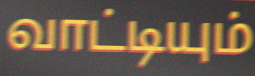
வாட்டியும்